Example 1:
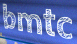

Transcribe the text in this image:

bmtc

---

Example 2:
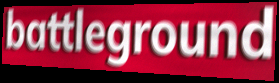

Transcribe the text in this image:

battleground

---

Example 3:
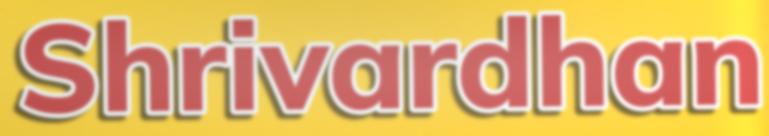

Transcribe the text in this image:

Shrivardhan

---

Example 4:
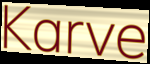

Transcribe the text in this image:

Karve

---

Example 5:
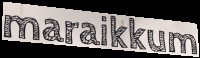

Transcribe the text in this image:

maraikkum